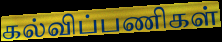
கல்விப்பணிகள்